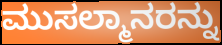
ಮುಸಲ್ಮಾನರನ್ನು